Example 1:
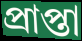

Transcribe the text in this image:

প্রাপ্তা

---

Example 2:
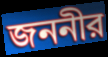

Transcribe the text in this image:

জননীর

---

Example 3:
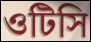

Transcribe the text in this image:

ওটিসি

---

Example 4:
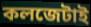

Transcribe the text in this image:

কলজেটাই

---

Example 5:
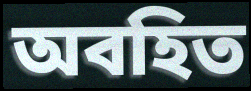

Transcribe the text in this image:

অবহিত